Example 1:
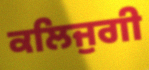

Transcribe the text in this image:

ਕਲਿਜੁਗੀ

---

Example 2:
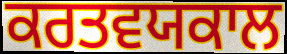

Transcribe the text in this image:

ਕਰਤਵਯਕਾਲ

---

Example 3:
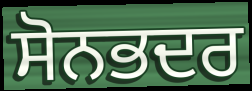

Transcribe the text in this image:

ਸੋਨਭਦਰ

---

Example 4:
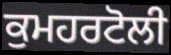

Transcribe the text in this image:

ਕੁਮਹਰਟੋਲੀ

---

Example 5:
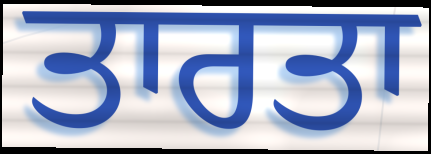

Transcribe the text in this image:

ਤਾਰਤਾ